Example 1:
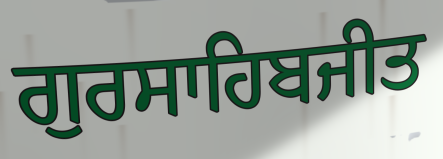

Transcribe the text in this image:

ਗੁਰਸਾਹਿਬਜੀਤ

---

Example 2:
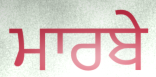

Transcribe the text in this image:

ਮਾਰਬੇ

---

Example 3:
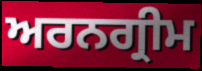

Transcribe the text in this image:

ਅਰਨਗ੍ਰੀਮ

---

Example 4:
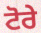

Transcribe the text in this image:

ਟੋਰੇ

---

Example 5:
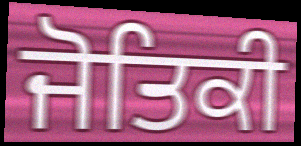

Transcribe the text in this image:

ਜੋਤਿਕੀ